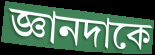
জ্ঞানদাকে